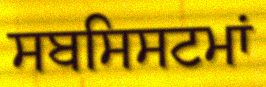
ਸਬਸਿਸਟਮਾਂ